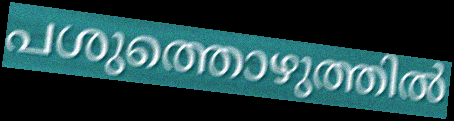
പശുത്തൊഴുത്തിൽ